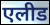
एलीड